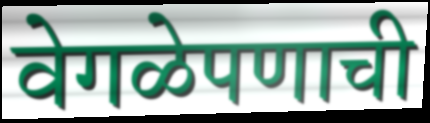
वेगळेपणाची